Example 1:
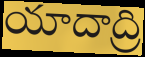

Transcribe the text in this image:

యాదాద్రి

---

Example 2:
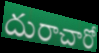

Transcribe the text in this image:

దురాచారో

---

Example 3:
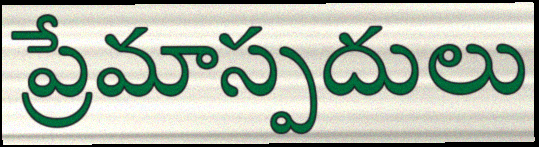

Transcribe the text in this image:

ప్రేమాస్పదులు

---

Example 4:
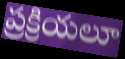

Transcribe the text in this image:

ప్రక్రియలూ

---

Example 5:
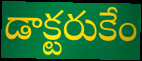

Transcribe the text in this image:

డాక్టరుకేం